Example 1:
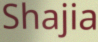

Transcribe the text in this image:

Shajia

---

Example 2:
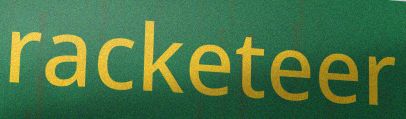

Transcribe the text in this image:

racketeer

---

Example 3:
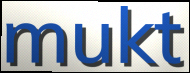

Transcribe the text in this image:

mukt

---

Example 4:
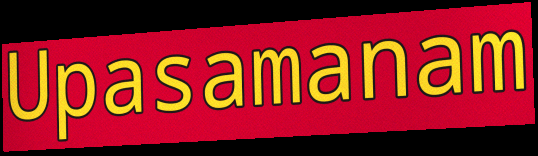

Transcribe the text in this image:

Upasamanam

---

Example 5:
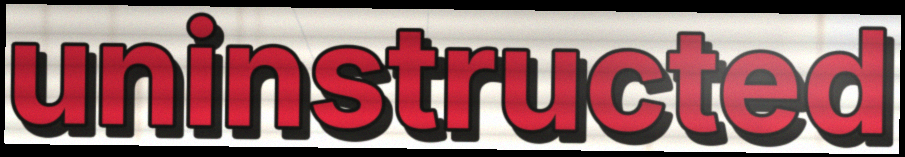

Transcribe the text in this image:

uninstructed